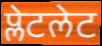
प्लेटलेट